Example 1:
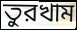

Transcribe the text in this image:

তুরখাম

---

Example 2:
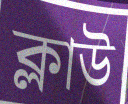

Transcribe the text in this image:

ক্লাউ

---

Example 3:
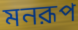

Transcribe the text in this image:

মনরূপ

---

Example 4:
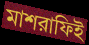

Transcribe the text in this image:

মাশরাফিই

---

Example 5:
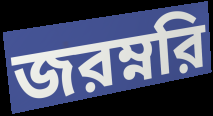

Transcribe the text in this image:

জরম্নরি